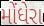
મોંધેરા